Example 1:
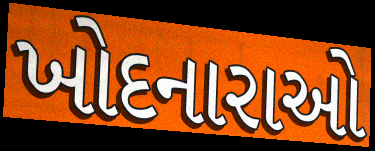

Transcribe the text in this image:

ખોદનારાઓ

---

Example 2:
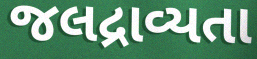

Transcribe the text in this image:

જલદ્રાવ્યતા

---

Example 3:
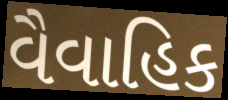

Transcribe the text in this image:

વૈવાહિક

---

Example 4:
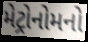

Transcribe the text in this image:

મેટ્રોનોમનો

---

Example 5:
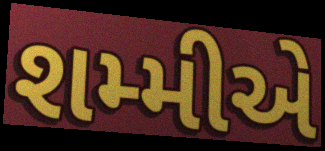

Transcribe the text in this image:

શમ્મીએ